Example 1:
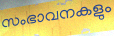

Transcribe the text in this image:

സംഭാവനകളും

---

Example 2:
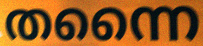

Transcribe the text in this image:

തന്നൈ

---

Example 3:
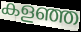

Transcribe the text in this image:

കളഞ്ഞ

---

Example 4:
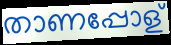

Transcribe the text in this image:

താണപ്പോള്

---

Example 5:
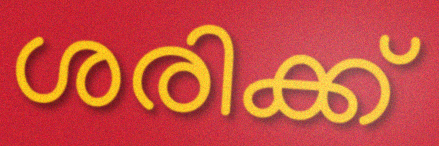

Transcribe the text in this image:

ശരിക്ക്